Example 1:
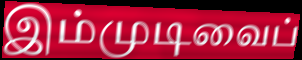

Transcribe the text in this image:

இம்முடிவைப்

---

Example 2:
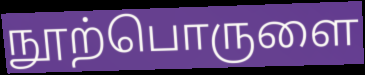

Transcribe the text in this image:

நூற்பொருளை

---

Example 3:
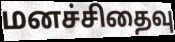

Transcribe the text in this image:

மனச்சிதைவு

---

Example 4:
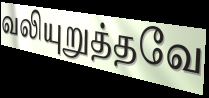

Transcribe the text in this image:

வலியுறுத்தவே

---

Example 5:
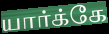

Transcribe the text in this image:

யார்க்கே